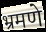
भ्रमणे